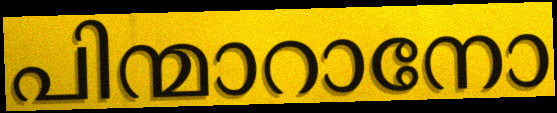
പിന്മാറാനോ